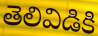
తెలివిడికి